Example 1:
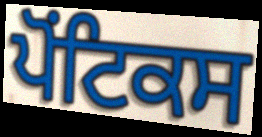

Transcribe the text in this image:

ਪੋਂਟਿਕਸ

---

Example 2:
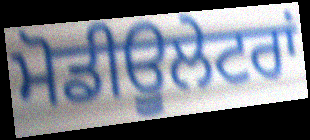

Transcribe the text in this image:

ਮੋਡੀਊਲੇਟਰਾਂ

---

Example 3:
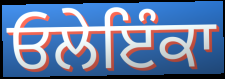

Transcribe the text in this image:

ਓਲੇਇੰਕਾ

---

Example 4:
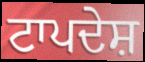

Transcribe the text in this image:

ਟਾਪਦੇਸ਼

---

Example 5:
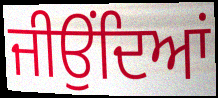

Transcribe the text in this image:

ਜੀਉਂਦਿਆਂ